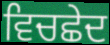
ਵਿਚਛੇਦ